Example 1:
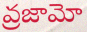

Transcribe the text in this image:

వ్రజామో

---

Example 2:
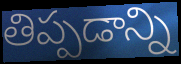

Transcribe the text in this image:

తిప్పడాన్ని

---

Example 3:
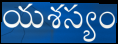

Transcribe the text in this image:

యశస్యం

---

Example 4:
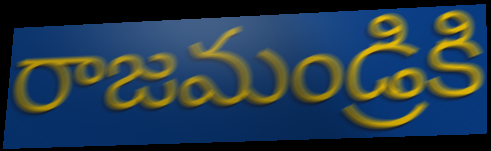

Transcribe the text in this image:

రాజమండ్రికి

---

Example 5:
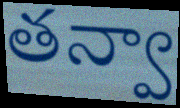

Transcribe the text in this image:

తన్వా